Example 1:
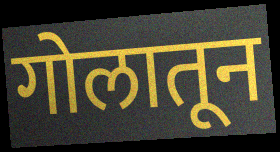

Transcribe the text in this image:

गोलातून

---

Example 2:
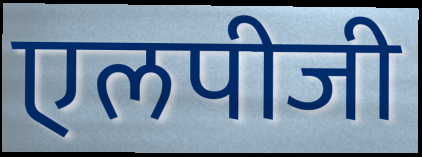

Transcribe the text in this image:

एलपीजी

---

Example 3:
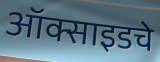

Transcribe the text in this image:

ऑक्साइडचे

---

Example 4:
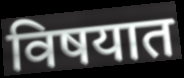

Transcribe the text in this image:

विषयात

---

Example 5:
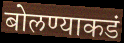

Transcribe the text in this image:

बोलण्याकडं